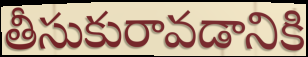
తీసుకురావడానికి